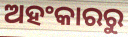
ଅହଂକାରରୁ